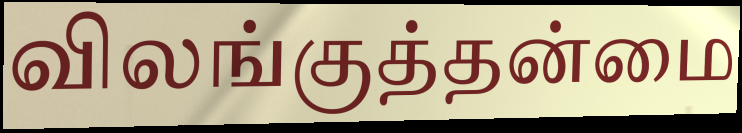
விலங்குத்தன்மை